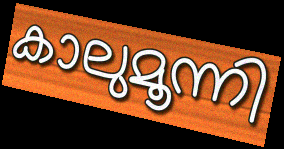
കാലുമൂന്നി